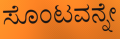
ಸೊಂಟವನ್ನೇ